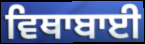
ਵਿਥਾਬਾਈ